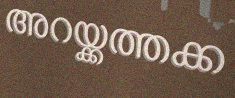
അറയ്ക്കത്തക്ക